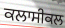
ਕਲਾਸੀਕਲ